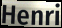
Henri